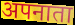
अपनाता